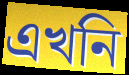
এখনি